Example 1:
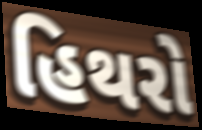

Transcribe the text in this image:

હિથરો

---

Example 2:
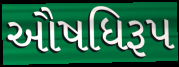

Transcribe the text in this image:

ઔષધિરૂપ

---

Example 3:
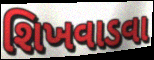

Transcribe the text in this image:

શિખવાડવા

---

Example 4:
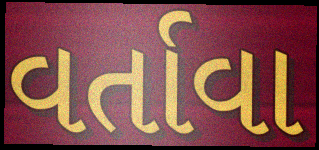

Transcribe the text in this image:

વર્તાવા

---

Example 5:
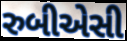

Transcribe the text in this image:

રુબીએસી